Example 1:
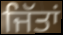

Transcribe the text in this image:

ਜਿੱਤਾਂ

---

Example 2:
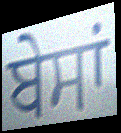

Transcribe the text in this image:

ਬੇਸਾਂ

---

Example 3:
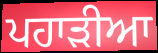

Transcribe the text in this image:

ਪਹਾੜੀਆ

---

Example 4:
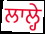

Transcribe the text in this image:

ਲਾਲ੍ਹੇ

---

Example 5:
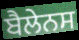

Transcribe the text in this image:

ਬੈਲੇਨਸ